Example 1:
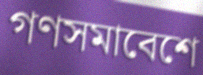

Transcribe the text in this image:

গণসমাবেশে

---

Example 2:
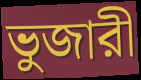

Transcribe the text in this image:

ভুজারী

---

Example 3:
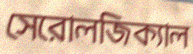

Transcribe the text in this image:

সেরোলজিক্যাল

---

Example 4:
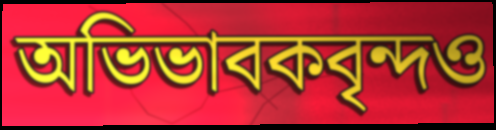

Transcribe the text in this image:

অভিভাবকবৃন্দও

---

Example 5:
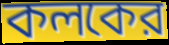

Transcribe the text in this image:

কলকের